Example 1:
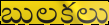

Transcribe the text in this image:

బులకలు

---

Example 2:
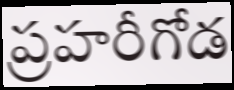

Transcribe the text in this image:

ప్రహరీగోడ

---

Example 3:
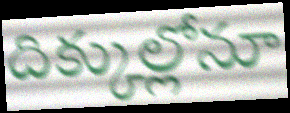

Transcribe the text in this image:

దిక్కుల్లోనూ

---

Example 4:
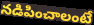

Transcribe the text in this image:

నడిపించాలంటే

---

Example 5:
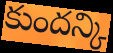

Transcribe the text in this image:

కుందన్కి